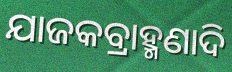
ଯାଜକବ୍ରାହ୍ମଣାଦି